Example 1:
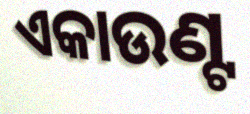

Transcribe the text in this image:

ଏକାଉଣ୍ଟ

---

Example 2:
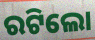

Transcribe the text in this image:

ରଟିଲୋ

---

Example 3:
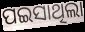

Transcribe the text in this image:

ପଇସାଥିଲା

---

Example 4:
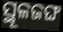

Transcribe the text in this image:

ସ୍ଥୂଳଜଙ୍ଘ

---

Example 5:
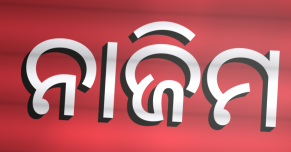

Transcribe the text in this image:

ନାଜିମ